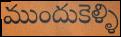
ముందుకెళ్ళి